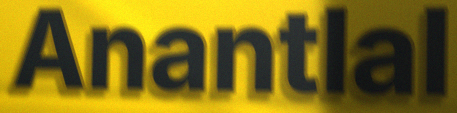
Anantlal